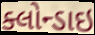
ક્લોન્ડાઇ